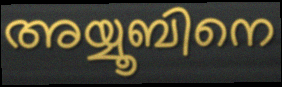
അയ്യൂബിനെ